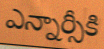
ఎన్నార్సీకి